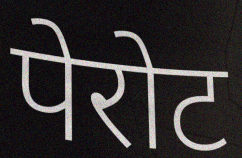
पेरोट